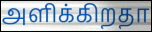
அளிக்கிறதா